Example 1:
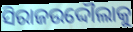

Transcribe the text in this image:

ସିରାଜଉଦ୍ଦୌଲାକୁ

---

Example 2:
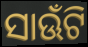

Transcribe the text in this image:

ସାଊଁଟି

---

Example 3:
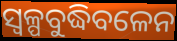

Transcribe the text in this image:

ସ୍ଵଳ୍ପବୁଦ୍ଧିବଳେନ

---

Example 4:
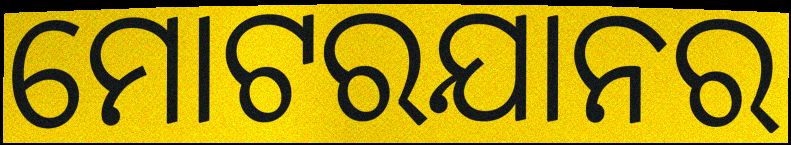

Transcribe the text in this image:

ମୋଟରଯାନର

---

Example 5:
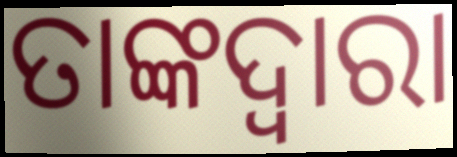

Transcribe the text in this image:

ତାଙ୍କଦ୍ଵାରା